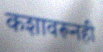
कशावरूनही